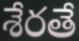
శేరతే